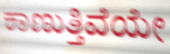
ಕಾಣುತ್ತಿವೆಯೇ